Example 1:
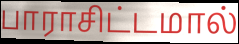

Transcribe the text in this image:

பாராசிட்டமால்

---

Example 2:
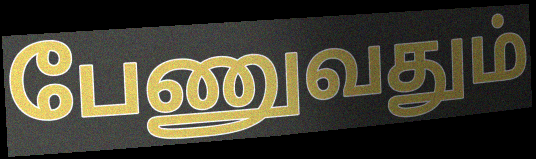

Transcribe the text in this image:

பேணுவதும்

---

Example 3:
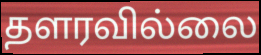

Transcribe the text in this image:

தளரவில்லை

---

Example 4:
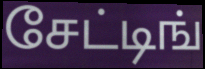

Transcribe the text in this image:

சேட்டிங்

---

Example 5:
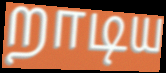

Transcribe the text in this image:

றாடிய